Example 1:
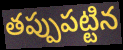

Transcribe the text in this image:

తప్పుపట్టిన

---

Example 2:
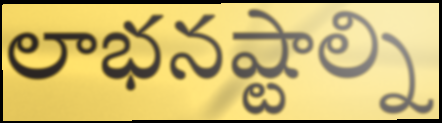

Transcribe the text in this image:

లాభనష్టాల్ని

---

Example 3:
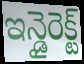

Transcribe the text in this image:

ఇన్డైరెక్ట్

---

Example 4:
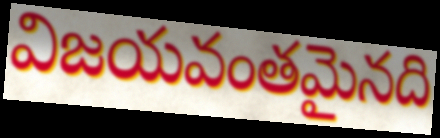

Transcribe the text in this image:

విజయవంతమైనది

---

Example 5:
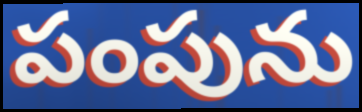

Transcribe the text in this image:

పంపును